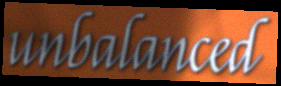
unbalanced